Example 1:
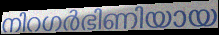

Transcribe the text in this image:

നിറഗർഭിണിയായ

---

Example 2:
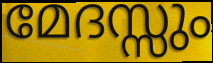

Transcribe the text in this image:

മേദസ്സും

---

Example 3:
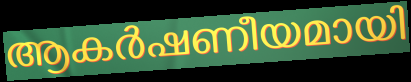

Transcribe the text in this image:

ആകർഷണീയമായി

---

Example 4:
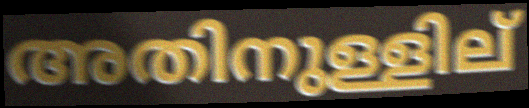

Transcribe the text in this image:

അതിനുള്ളില്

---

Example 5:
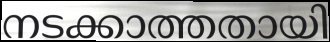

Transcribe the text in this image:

നടക്കാത്തതായി